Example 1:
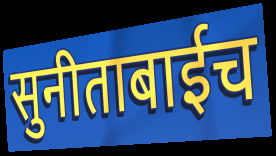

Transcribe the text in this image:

सुनीताबाईच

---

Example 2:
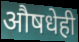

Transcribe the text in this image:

औषधेही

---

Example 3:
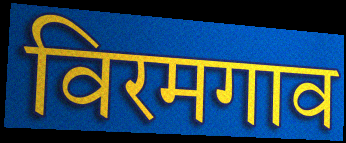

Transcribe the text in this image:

विरमगाव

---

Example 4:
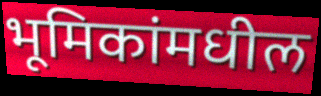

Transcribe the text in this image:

भूमिकांमधील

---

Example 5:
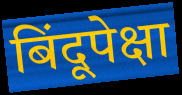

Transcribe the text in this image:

बिंदूपेक्षा